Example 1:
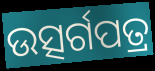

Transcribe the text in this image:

ଉତ୍ସର୍ଗପତ୍ର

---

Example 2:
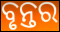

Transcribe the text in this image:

ବୃନ୍ତର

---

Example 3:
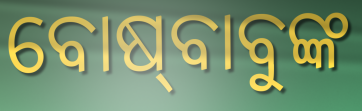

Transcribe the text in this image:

ବୋଷ୍‍ବାବୁଙ୍କ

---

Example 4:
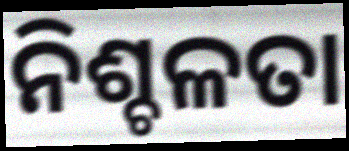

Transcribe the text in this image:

ନିଶ୍ଚଳତା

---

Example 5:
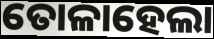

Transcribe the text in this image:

ତୋଳାହେଲା